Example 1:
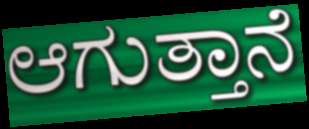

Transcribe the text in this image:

ಆಗುತ್ತಾನೆ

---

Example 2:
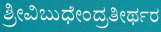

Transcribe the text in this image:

ಶ್ರೀವಿಬುಧೇಂದ್ರತೀರ್ಥರ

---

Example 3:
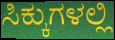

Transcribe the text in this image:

ಸಿಕ್ಕುಗಳಲ್ಲಿ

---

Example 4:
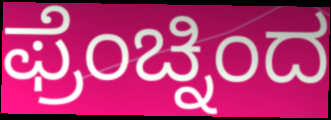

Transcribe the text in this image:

ಫ್ರೆಂಚ್ನಿಂದ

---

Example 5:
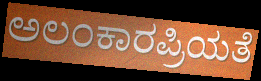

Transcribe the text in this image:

ಅಲಂಕಾರಪ್ರಿಯತೆ